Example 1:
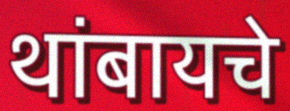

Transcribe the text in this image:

थांबायचे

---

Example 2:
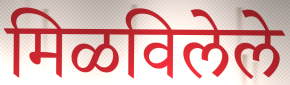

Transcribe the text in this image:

मिळविलेले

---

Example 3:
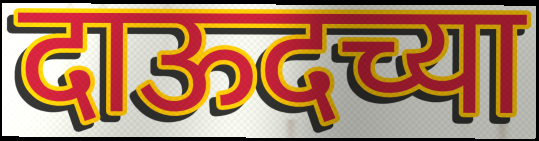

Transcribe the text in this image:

दाऊदच्या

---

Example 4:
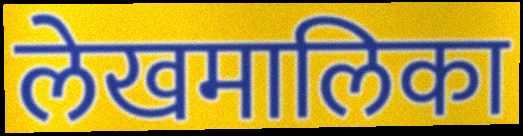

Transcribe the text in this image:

लेखमालिका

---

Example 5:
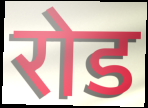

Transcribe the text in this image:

रोड